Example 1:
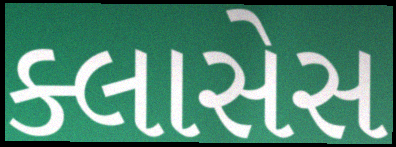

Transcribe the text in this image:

ક્લાસેસ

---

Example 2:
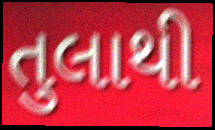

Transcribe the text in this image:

તુલાથી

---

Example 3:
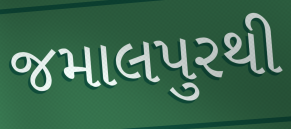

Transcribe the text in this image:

જમાલપુરથી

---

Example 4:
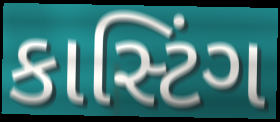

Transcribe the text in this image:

કાસ્ટિંગ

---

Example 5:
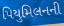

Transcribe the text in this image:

પિયુમિલનની